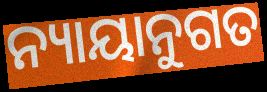
ନ୍ୟାୟାନୁଗତ